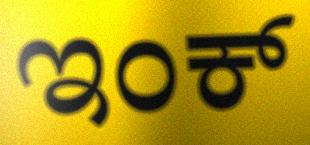
ಇಂಕ್